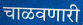
चाळवणारी